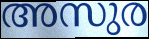
അസുര